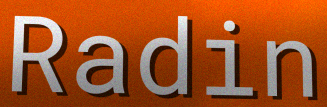
Radin